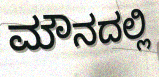
ಮೌನದಲ್ಲಿ